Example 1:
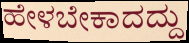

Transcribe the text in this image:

ಹೇಳಬೇಕಾದದ್ದು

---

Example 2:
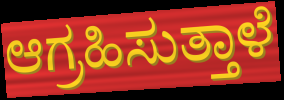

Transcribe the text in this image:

ಆಗ್ರಹಿಸುತ್ತಾಳೆ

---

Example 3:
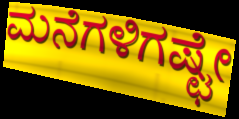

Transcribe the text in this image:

ಮನೆಗಳಿಗಷ್ಟೇ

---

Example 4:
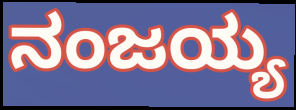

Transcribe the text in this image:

ನಂಜಯ್ಯ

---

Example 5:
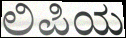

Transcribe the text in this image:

ಲಿಪಿಯ